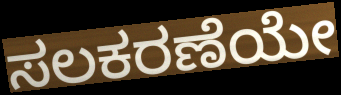
ಸಲಕರಣೆಯೇ